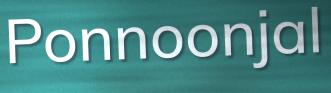
Ponnoonjal